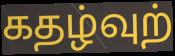
கதழ்வுற்